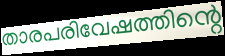
താരപരിവേഷത്തിന്റെ